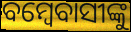
ବମ୍ବେବାସୀଙ୍କୁ